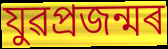
যুৱপ্ৰজন্মৰ